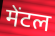
मेंटल